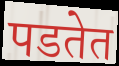
पडतेत